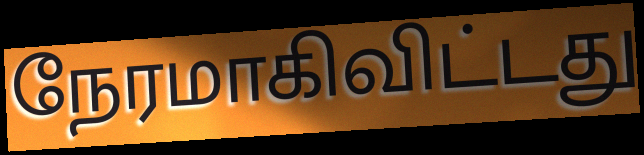
நேரமாகிவிட்டது